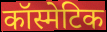
कॉस्मेटिक